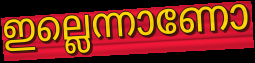
ഇല്ലെന്നാണോ